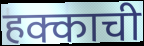
हक्काची